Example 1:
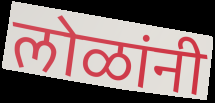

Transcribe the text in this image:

लोळांनी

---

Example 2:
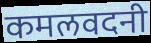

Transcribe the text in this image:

कमलवदनी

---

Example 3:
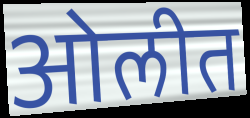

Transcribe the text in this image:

ओलीत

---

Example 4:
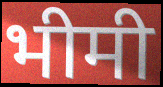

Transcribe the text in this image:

भीमी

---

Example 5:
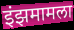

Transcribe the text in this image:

इंझमामला